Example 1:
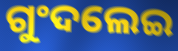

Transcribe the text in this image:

ଗୁଂଦଲେଇ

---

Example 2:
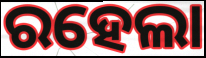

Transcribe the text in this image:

ରହେଲା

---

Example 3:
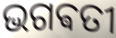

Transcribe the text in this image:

ଭଗଵତୀ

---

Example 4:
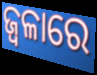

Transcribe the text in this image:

ଜ୍ୱଳାରେ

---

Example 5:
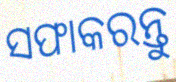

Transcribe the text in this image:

ସଫାକରନ୍ତୁ